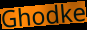
Ghodke